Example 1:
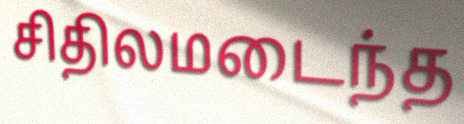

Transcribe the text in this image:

சிதிலமடைந்த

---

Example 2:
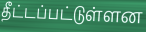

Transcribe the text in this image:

தீட்டப்பட்டுள்ளன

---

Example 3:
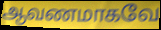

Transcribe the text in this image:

ஆவணமாகவே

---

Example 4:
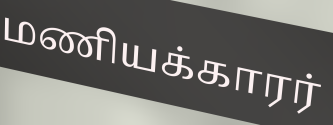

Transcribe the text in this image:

மணியக்காரர்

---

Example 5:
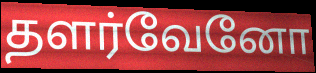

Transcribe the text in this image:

தளர்வேனோ